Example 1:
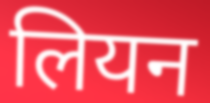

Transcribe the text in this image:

लियन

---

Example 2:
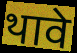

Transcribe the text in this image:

थावे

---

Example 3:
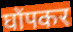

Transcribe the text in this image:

घोंपकर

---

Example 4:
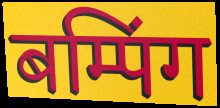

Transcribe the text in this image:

बम्पिंग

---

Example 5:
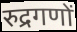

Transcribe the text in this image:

रुद्रगणों